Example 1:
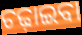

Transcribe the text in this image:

ଚଢ଼ାଇବା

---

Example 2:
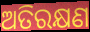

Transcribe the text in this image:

ଅତିରକ୍ଷଣ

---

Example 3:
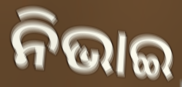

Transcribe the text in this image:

ନିଭାଇ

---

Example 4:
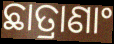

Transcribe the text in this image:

ଛାତ୍ରାଣାଂ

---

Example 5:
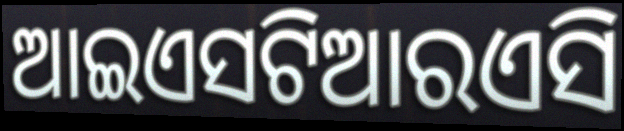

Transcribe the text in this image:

ଆଇଏସଟିଆରଏସି